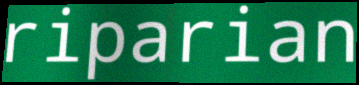
riparian